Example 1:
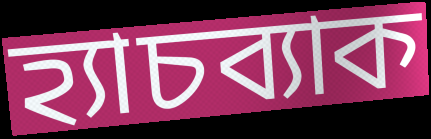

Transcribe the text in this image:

হ্যাচব্যাক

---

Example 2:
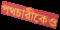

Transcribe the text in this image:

পথচারীকেও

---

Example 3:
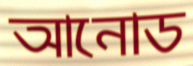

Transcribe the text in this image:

আনোড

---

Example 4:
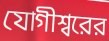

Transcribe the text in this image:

যোগীশ্বরের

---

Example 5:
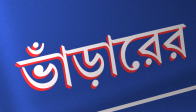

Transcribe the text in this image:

ভাঁড়ারের